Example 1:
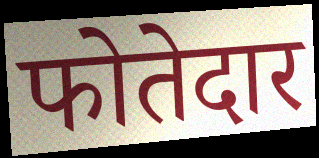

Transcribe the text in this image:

फोतेदार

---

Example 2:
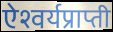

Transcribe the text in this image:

ऐश्वर्यप्राप्ती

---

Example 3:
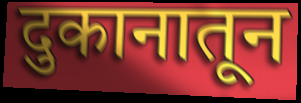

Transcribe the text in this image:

दुकानातून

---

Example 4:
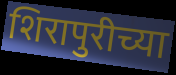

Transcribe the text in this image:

शिरापुरीच्या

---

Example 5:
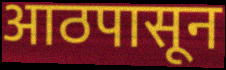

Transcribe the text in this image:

आठपासून